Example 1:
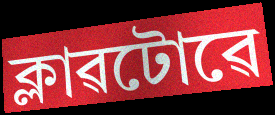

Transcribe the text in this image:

ক্লাৱটোৱে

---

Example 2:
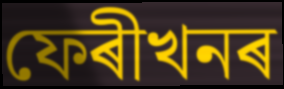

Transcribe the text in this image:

ফেৰীখনৰ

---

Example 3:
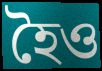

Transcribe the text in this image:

হৈও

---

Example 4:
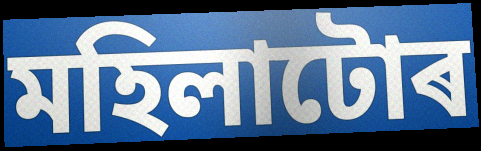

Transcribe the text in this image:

মহিলাটোৰ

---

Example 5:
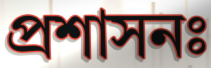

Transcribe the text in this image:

প্ৰশাসনঃ